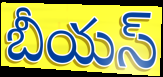
బీయస్